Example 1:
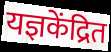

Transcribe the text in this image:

यज्ञकेंद्रित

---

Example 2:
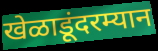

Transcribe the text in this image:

खेळाडूंदरम्यान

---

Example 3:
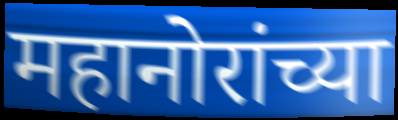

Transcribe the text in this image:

महानोरांच्या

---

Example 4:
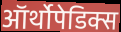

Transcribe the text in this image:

ऑर्थोपेडिक्स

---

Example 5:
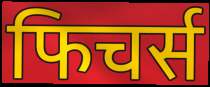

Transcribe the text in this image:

फिचर्स